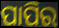
ପାପିର